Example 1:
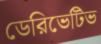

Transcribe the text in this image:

ডেরিভেটিভ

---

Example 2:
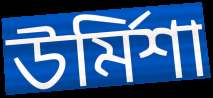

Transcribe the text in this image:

উর্মিশা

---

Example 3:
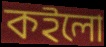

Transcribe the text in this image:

কইলো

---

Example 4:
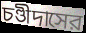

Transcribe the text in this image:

চণ্ডীদাসের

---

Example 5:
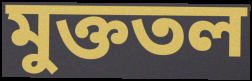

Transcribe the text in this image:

মুক্ততল